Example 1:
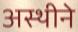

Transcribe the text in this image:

अस्थीने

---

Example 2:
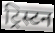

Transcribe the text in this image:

ट्रिस्टन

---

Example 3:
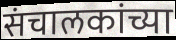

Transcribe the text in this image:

संचालकांच्या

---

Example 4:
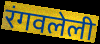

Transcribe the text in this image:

रंगवलेली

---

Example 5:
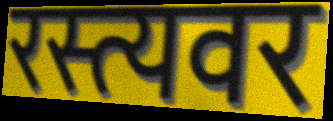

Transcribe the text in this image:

रस्त्यवर